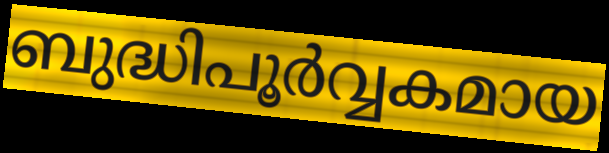
ബുദ്ധിപൂർവ്വകമായ